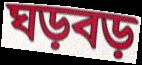
ঘড়বড়